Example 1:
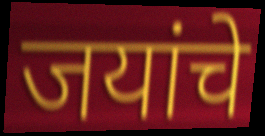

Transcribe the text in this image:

जयांचे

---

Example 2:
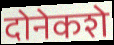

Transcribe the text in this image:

दोनेकशे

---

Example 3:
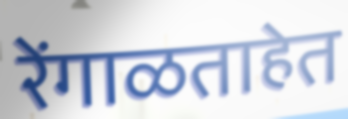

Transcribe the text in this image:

रेंगाळताहेत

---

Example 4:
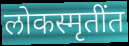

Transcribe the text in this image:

लोकस्मृतींत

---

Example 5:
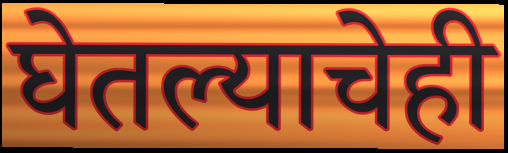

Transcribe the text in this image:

घेतल्याचेही